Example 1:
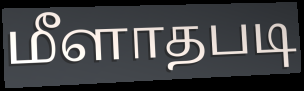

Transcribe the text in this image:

மீளாதபடி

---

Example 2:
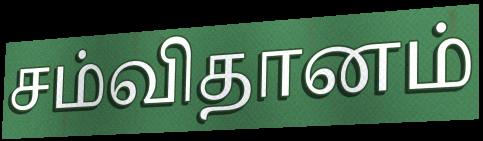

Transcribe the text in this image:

சம்விதானம்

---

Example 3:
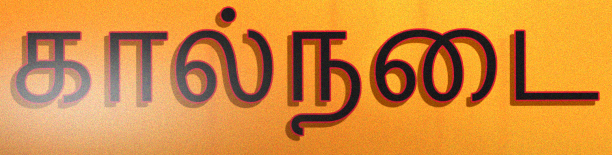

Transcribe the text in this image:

கால்நடை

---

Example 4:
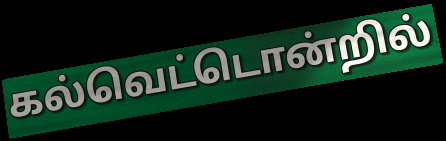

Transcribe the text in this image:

கல்வெட்டொன்றில்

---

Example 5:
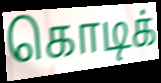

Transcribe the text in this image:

கொடிக்